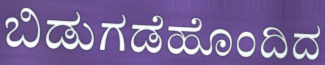
ಬಿಡುಗಡೆಹೊಂದಿದ